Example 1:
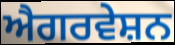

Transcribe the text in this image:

ਐਗਰਵੇਸ਼ਨ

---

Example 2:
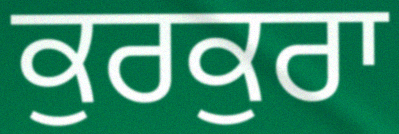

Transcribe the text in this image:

ਕੁਰਕੁਰਾ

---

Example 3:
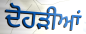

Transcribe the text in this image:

ਦੋਹੜੀਆਂ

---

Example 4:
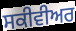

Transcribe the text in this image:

ਸਕੀਵੀਅਰ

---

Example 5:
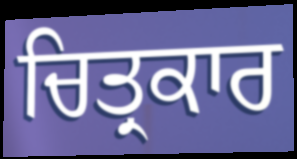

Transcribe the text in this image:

ਚਿਤ੍ਰਕਾਰ